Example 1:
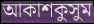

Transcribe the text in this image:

আকাশকুসুম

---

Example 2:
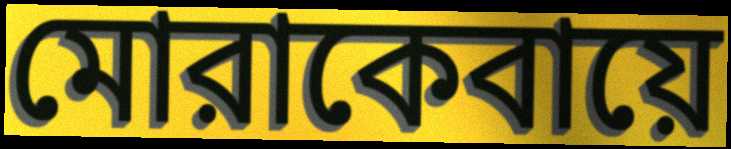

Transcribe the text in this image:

মোরাকেবায়ে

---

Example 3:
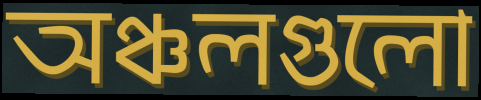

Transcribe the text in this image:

অঞ্চলগুলো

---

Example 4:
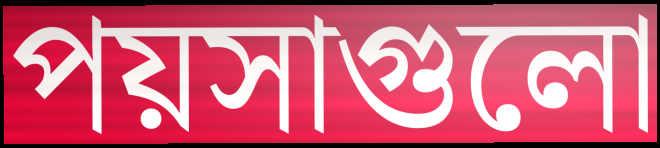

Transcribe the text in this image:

পয়সাগুলো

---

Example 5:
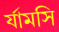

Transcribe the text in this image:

র্যামসি